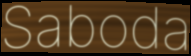
Saboda